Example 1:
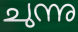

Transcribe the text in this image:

ചുന്നു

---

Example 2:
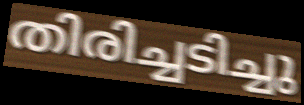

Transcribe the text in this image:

തിരിച്ചടിച്ചു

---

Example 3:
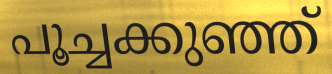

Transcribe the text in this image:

പൂച്ചക്കുഞ്ഞ്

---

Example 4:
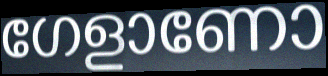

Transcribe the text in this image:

ഗേളാണോ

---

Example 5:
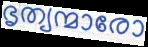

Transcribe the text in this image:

ഭൃത്യന്മാരോ